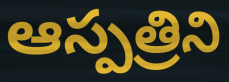
ఆస్పత్రిని